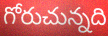
గోరుచున్నది